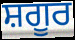
ਸ਼ਗੂਰ